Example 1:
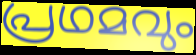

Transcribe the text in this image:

പ്രഥമവും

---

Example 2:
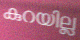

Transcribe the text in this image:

കുറയില്ല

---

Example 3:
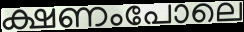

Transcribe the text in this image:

ക്ഷണംപോലെ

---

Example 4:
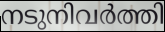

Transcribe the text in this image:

നടുനിവർത്തി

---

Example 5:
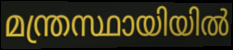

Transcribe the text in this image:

മന്ത്രസ്ഥായിയിൽ